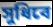
সুধিবে